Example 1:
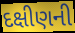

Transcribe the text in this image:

દક્ષીણની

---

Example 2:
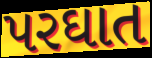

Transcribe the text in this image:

પરઘાત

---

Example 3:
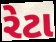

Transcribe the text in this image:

રેટા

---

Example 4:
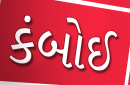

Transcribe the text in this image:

કંબોઈ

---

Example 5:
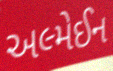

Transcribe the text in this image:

અલ્મેઈન